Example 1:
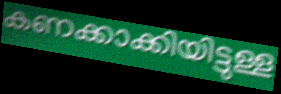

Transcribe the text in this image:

കണക്കാക്കിയിട്ടുള്ള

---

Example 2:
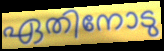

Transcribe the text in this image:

ഏതിനോടു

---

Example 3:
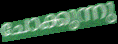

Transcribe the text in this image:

ചോക്കുന്നു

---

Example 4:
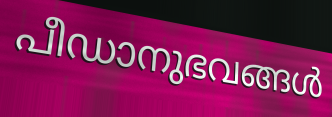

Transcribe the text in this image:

പീഡാനുഭവങ്ങൾ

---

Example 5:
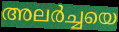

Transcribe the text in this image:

അലർച്ചയെ